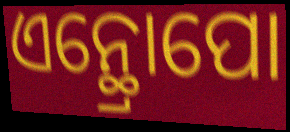
ଏନ୍ଥ୍ରୋପୋ